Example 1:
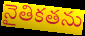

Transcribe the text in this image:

నైతికతను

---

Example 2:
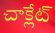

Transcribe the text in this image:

చాక్లేట్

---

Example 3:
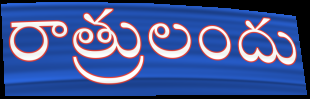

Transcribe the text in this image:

రాత్రులందు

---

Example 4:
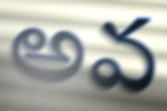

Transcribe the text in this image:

అవ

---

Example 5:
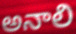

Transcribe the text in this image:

అనాలి